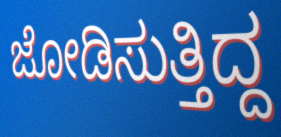
ಜೋಡಿಸುತ್ತಿದ್ದ